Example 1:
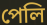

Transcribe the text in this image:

পেলি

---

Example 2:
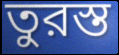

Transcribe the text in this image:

তুরস্ত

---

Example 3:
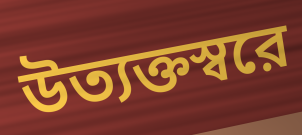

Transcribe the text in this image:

উত্যক্তস্বরে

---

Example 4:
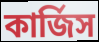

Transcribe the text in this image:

কার্জিস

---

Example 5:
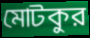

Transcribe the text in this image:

মোটকুর